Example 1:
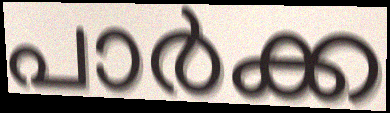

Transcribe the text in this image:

പാർക്ക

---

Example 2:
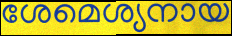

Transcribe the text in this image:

ശേമെശ്യനായ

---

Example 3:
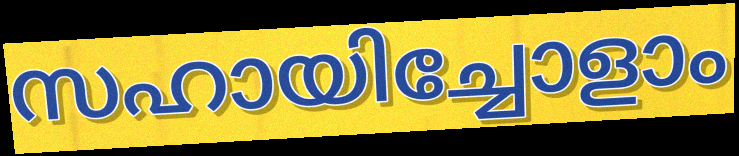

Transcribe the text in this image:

സഹായിച്ചോളാം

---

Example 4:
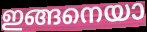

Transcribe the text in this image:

ഇങ്ങനെയാ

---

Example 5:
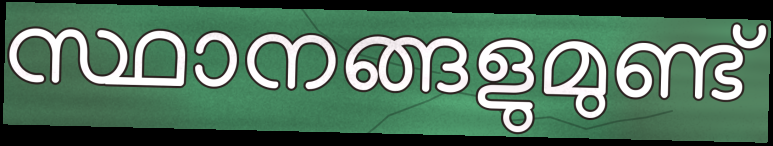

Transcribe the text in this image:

സ്ഥാനങ്ങളുമുണ്ട്